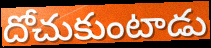
దోచుకుంటాడు